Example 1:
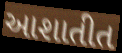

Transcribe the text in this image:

આશાતીત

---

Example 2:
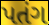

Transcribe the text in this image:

પતંગ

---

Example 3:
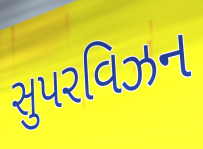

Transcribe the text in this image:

સુપરવિઝન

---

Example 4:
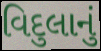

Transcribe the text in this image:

વિદુલાનું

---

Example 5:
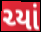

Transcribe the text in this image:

ચ્યાં